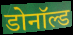
डोनॉल्ड